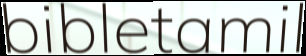
bibletamil